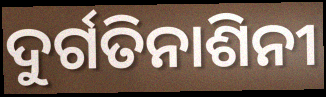
ଦୁର୍ଗତିନାଶିନୀ